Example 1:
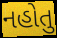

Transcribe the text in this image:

નહોતુ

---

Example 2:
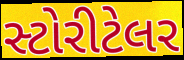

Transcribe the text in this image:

સ્ટોરીટેલર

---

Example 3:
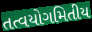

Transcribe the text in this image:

તત્વયોગમિતીય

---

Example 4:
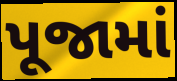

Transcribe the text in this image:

પૂજામાં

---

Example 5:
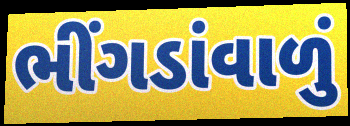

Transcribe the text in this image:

ભીંગડાંવાળું